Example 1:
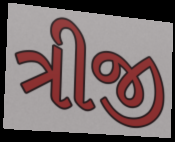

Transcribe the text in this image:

ત્રીજી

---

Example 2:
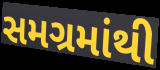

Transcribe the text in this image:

સમગ્રમાંથી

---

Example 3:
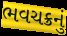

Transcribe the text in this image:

ભવચક્રનું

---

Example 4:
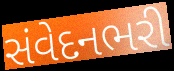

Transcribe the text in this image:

સંવેદનભરી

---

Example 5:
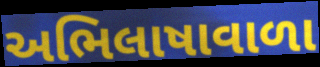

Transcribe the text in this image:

અભિલાષાવાળા